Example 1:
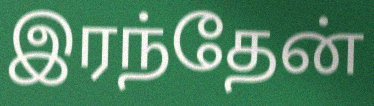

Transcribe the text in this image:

இரந்தேன்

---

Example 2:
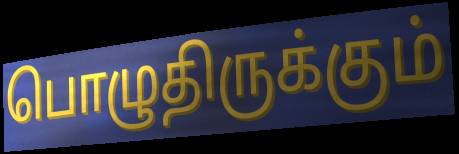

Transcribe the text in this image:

பொழுதிருக்கும்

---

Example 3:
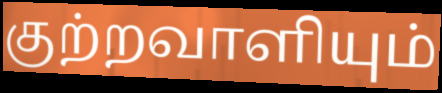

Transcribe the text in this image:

குற்றவாளியும்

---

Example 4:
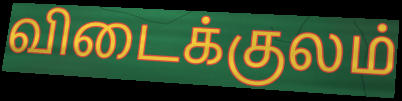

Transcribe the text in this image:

விடைக்குலம்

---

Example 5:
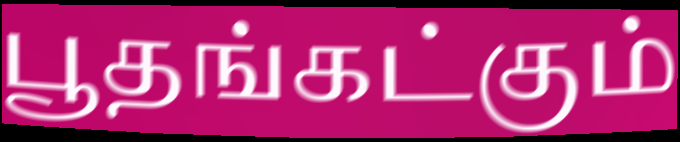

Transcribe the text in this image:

பூதங்கட்கும்